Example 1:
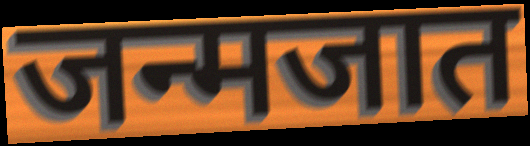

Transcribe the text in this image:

जन्मजात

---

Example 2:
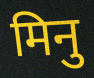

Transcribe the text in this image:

मिनु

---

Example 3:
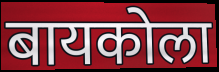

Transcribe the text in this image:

बायकोला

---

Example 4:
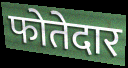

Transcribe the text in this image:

फोतेदार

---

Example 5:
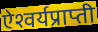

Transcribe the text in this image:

ऐश्वर्यप्राप्ती